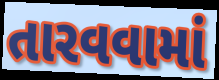
તારવવામાં